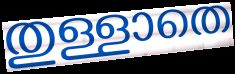
തുള്ളാതെ